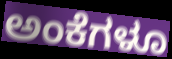
ಅಂಕೆಗಳೂ